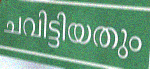
ചവിട്ടിയതും